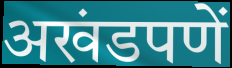
अखंडपणें